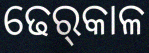
ଢେର୍‌କାଳ